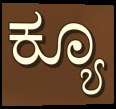
ಕ್ಯೂ